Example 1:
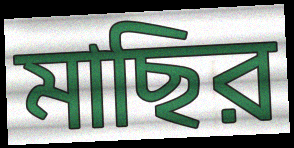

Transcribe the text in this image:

মাছির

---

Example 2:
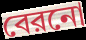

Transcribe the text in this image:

বেরনো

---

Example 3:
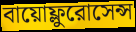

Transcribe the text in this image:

বায়োফ্লুরোসেন্স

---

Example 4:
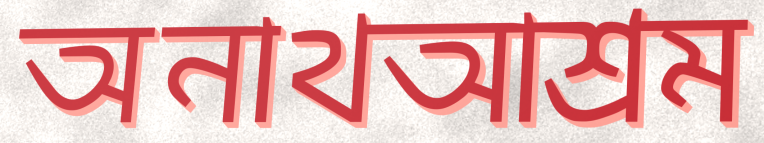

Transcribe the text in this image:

অনাথআশ্রম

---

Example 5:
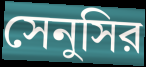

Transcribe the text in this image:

সেনুসির